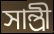
সান্ত্রী